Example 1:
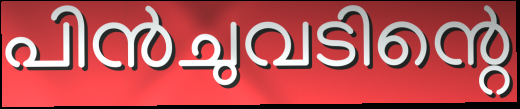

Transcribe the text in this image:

പിൻചുവടിന്റെ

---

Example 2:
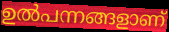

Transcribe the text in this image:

ഉൽപന്നങ്ങളാണ്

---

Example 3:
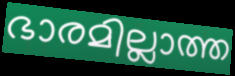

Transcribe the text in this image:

ഭാരമില്ലാത്ത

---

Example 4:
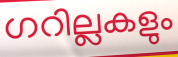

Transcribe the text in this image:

ഗറില്ലകളും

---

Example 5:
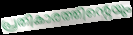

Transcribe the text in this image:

പ്രതികാരത്തിന്റെയും